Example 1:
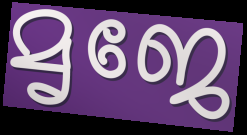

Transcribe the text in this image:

മൃജേ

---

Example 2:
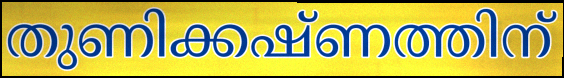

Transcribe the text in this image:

തുണിക്കഷ്ണത്തിന്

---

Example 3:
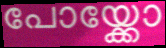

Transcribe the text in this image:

പോയ്ക്കോ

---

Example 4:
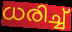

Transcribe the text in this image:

ധരിച്ച്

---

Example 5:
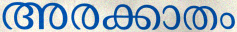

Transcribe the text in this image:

അരക്കാതം